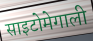
साइटोमेगाली